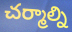
చర్మాల్ని